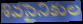
శివసైనికుల